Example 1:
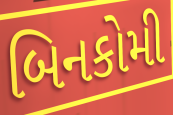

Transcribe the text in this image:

બિનકોમી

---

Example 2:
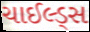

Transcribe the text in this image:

ચાઈલ્ડ્સ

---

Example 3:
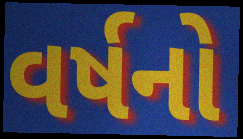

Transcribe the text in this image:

વર્ષનો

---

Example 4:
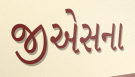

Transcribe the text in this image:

જીએસના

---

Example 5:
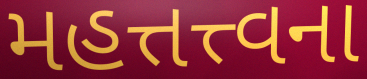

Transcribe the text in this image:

મહત્તત્ત્વના